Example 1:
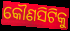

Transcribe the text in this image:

କୌଣସିଟିକୁ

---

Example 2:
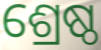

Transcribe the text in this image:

ଶ୍ରେଷ୍ଠ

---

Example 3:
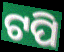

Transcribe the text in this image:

ଟପି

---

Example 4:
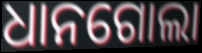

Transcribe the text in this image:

ଧାନଗୋଲା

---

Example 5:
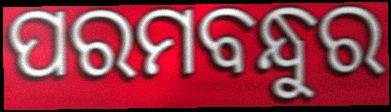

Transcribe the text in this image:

ପରମବନ୍ଧୁର